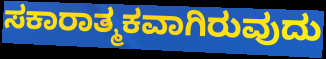
ಸಕಾರಾತ್ಮಕವಾಗಿರುವುದು